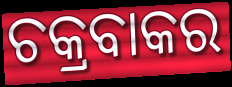
ଚକ୍ରବାକର